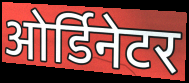
ओर्डिनेटर